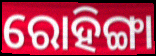
ରୋହିଙ୍ଗା